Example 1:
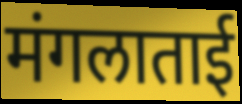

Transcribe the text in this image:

मंगलाताई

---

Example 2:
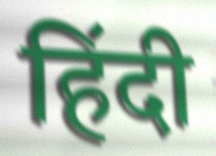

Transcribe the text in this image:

हिंदी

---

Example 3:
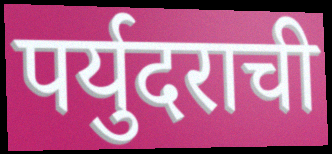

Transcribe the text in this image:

पर्युदराची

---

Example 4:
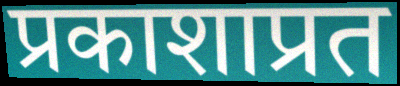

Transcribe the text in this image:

प्रकाशाप्रत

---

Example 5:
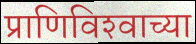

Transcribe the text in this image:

प्राणिविश्वाच्या